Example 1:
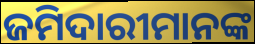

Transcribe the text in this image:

ଜମିଦାରୀମାନଙ୍କ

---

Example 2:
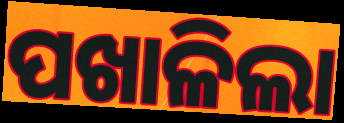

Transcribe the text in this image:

ପଖାଳିଲା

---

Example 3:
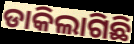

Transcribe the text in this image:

ଡାକିଲାଗିଛି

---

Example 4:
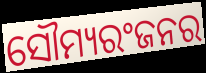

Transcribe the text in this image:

ସୌମ୍ୟରଂଜନର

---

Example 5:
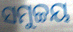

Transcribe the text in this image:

ସମୁଚ୍ଚୟ